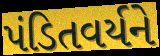
પંડિતવર્યને